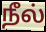
நீல்